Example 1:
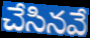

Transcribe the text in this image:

చేసినవే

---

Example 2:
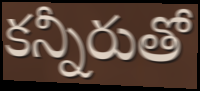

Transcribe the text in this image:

కన్నీరుతో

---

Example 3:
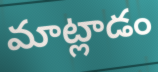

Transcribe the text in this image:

మాట్లాడం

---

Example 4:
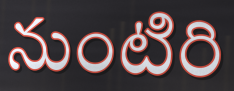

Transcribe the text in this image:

నుంటిరి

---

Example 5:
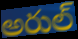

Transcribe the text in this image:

అరుల్